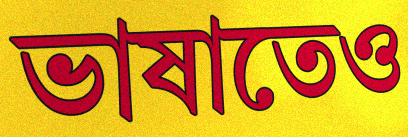
ভাষাতেও